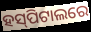
ହସ୍‌ପିଟାଲରେ